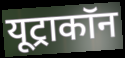
यूट्राकॉन